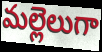
మల్లెలుగా